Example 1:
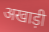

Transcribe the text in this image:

अखाड़ी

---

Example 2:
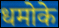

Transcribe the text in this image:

धमोके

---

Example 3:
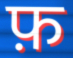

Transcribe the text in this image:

फ़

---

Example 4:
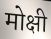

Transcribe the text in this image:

मोक्षी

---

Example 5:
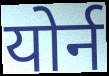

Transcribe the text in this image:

योर्न